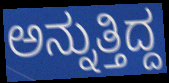
ಅನ್ನುತ್ತಿದ್ದ